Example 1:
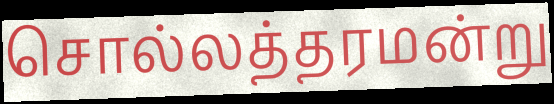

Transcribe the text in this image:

சொல்லத்தரமன்று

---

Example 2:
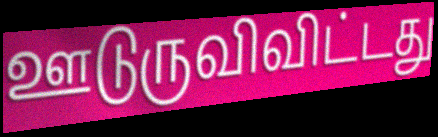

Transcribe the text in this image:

ஊடுருவிவிட்டது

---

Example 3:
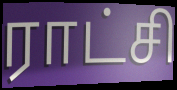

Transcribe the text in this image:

ராட்சி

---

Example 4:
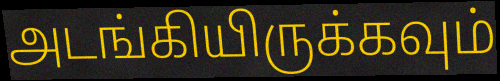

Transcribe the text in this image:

அடங்கியிருக்கவும்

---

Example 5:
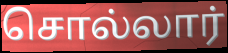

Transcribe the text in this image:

சொல்லார்